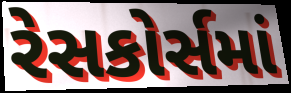
રેસકોર્સમાં